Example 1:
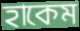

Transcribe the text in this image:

হাকেম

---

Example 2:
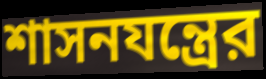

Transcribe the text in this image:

শাসনযন্ত্রের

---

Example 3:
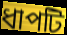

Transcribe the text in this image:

ধাপটি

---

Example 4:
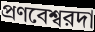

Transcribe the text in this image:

প্রণবেশ্বরদা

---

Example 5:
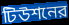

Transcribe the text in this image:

টিউশনের